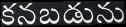
కనబడును